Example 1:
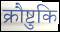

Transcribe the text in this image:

क्रौष्टुकि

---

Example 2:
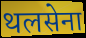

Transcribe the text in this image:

थलसेना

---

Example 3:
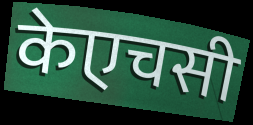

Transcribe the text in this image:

केएचसी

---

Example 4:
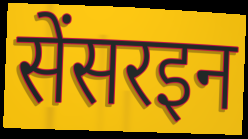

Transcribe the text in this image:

सेंसरइन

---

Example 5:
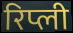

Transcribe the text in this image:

रिप्ली